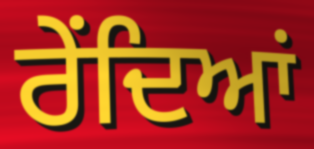
ਰੇਂਦਿਆਂ